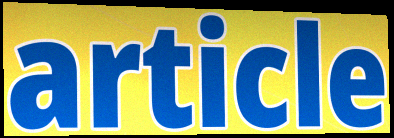
article